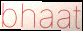
bhaat